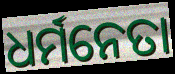
ଧର୍ମନେତା